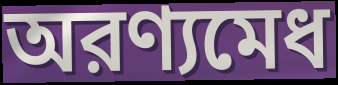
অরণ্যমেধ